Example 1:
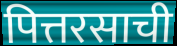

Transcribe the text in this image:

पित्तरसाची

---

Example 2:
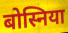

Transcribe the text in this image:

बोस्निया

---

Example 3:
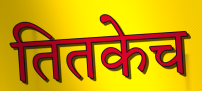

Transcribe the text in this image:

तितकेच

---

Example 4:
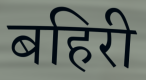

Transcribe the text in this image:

बहिरी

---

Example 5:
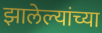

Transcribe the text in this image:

झालेल्यांच्या